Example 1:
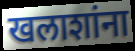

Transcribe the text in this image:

खलाशांना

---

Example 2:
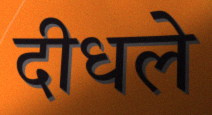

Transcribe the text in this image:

दीधले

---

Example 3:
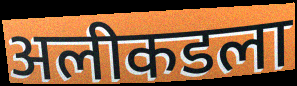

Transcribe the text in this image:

अलीकडला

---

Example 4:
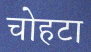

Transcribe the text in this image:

चोहटा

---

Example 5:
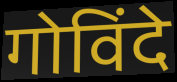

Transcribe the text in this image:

गोविंदे